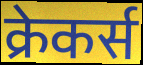
क्रेकर्स